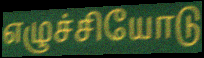
எழுச்சியோடு